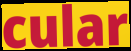
cular